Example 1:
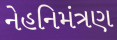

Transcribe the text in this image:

નેહનિમંત્રણ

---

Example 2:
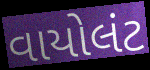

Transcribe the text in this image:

વાયોલંટ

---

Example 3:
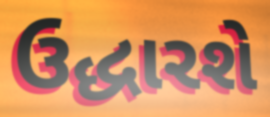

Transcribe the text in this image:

ઉદ્ધારશે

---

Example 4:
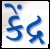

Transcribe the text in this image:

કેંદ્ર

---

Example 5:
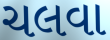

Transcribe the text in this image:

ચલવા